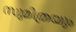
സുമിത്രയും